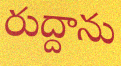
రుద్దాను